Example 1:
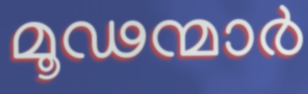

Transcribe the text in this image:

മൂഢന്മാർ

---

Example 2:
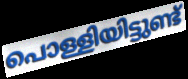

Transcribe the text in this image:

പൊള്ളിയിട്ടുണ്ട്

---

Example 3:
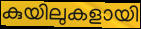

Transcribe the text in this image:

കുയിലുകളായി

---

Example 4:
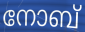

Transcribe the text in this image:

നോബ്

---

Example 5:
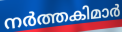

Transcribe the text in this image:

നർത്തകിമാർ